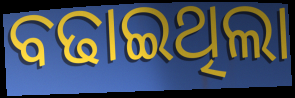
ବଢାଇଥିଲା